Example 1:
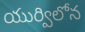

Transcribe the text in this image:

యుర్విలోన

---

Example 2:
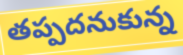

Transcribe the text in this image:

తప్పదనుకున్న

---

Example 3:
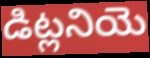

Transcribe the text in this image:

డిట్లనియె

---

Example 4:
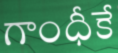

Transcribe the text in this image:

గాంధీకే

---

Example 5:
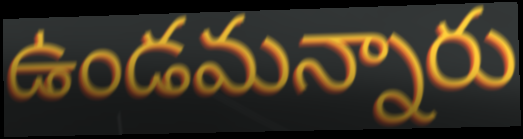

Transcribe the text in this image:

ఉండమన్నారు